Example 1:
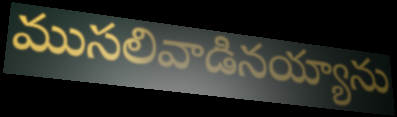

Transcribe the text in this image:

ముసలివాడినయ్యాను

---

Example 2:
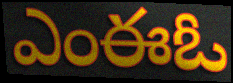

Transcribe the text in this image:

ఎంఈఓ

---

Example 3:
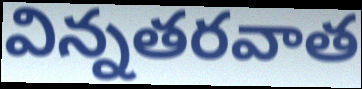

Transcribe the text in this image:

విన్నతరవాత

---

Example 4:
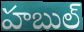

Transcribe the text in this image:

హబుల్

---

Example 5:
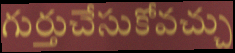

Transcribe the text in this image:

గుర్తుచేసుకోవచ్చు